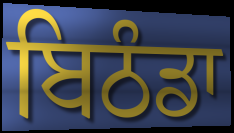
ਬਿਠੰਡਾ